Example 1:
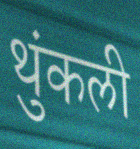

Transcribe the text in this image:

थुंकली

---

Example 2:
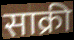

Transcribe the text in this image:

साक्री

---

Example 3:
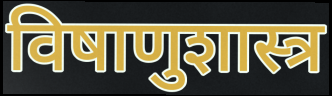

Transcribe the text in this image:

विषाणुशास्त्र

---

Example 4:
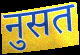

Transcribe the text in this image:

नुसत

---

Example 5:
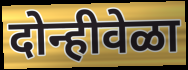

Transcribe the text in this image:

दोन्हीवेळा